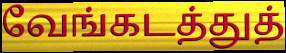
வேங்கடத்துத்